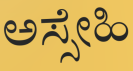
ಅಸ್ಸೇಹಿ